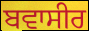
ਬਵਾਸੀਰ